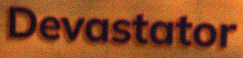
Devastator